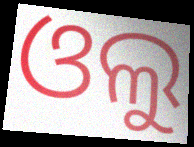
ଓଲୁ